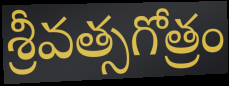
శ్రీవత్సగోత్రం